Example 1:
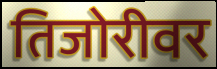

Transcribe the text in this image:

तिजोरीवर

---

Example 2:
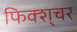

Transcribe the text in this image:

फिक्श्चर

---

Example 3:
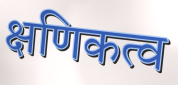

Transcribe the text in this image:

क्षणिकत्व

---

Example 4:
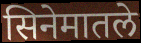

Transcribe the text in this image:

सिनेमातले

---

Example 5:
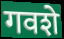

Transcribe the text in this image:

गवशे